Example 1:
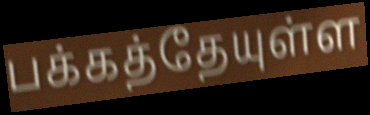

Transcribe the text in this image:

பக்கத்தேயுள்ள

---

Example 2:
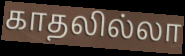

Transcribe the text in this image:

காதலில்லா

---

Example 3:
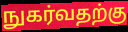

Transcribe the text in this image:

நுகர்வதற்கு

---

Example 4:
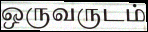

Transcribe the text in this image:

ஒருவருடம்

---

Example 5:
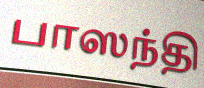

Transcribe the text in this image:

பாஸந்தி